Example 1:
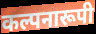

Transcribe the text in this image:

कल्पनारूपी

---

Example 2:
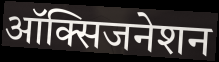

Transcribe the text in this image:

ऑक्सिजनेशन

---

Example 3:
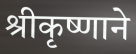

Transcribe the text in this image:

श्रीकृष्णाने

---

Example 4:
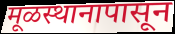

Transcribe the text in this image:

मूळस्थानापासून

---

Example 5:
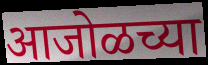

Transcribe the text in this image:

आजोळच्या